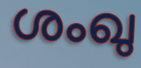
ശംഖു